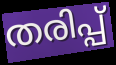
തരിപ്പ്